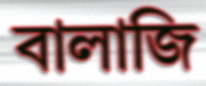
বালাজি